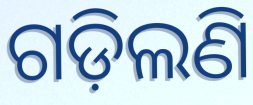
ଗଡ଼ିଲଣି